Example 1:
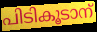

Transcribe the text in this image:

പിടികൂടാന്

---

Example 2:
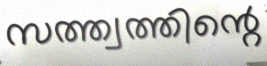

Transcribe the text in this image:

സത്ത്വത്തിന്റെ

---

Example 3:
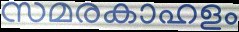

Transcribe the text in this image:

സമരകാഹളം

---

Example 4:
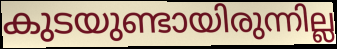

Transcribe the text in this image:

കുടയുണ്ടായിരുന്നില്ല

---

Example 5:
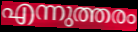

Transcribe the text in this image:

എന്നുത്തരം